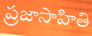
ప్రజాసాహితి